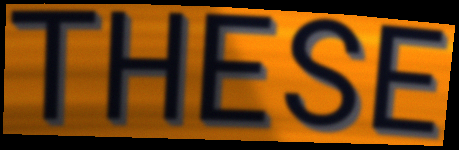
THESE